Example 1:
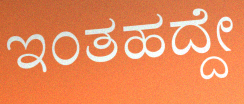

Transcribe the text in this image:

ಇಂತಹದ್ದೇ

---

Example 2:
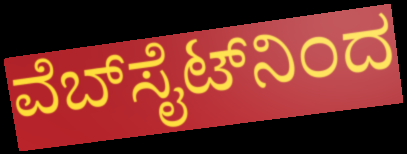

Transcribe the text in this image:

ವೆಬ್‍ಸೈಟ್‍ನಿಂದ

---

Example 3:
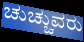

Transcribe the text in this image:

ಚುಚ್ಚುವರು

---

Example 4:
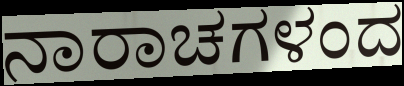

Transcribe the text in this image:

ನಾರಾಚಗಳಂದ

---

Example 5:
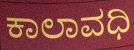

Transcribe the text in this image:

ಕಾಲಾವಧಿ